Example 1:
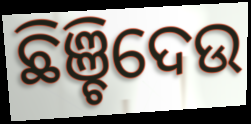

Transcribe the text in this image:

ଛିଞ୍ଚିଦେଉ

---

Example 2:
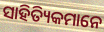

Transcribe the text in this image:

ସାହିତ୍ୟିକମାନେ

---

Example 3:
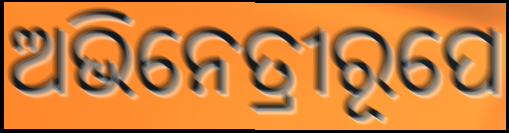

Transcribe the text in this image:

ଅଭିନେତ୍ରୀରୂପେ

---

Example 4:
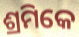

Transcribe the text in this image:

ଶ୍ରମିକେ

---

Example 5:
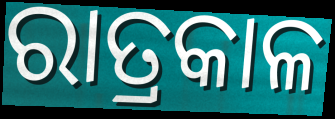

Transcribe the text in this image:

ରାତ୍ରକାଳ